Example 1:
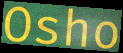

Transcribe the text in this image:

Osho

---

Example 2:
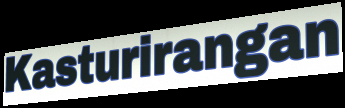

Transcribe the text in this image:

Kasturirangan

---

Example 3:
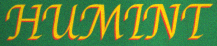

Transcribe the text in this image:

HUMINT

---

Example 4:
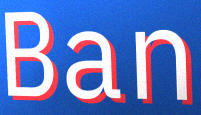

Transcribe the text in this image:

Ban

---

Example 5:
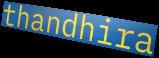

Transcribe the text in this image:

thandhira